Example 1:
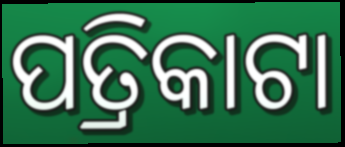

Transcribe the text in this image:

ପତ୍ରିକାଟା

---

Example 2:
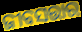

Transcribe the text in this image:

ଜୀବସତ୍ତାର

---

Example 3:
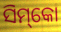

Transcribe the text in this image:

ସିମ୍‌କୋ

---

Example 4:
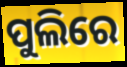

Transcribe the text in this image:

ପୁଲିରେ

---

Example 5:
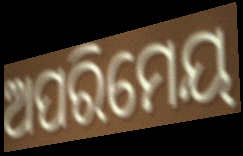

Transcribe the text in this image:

ଅପରିମେୟ